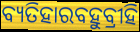
ବ୍ୟତିହାରବହୁବ୍ରୀହି